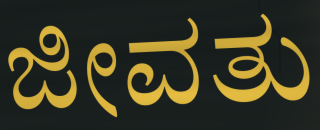
ಜೀವತು